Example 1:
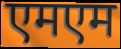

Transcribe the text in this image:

एमएम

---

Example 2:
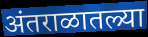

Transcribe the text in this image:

अंतराळातल्या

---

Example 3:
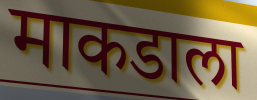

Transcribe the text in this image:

माकडाला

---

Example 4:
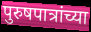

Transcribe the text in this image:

पुरुषपात्रांच्या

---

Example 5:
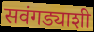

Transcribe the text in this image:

सवंगड्याशी